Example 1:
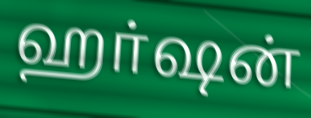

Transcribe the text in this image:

ஹர்ஷன்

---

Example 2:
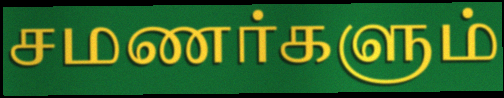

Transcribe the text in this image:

சமணர்களும்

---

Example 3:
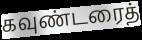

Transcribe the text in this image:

கவுண்டரைத்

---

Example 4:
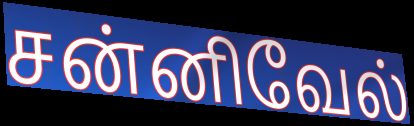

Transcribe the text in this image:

சன்னிவேல்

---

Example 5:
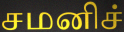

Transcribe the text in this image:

சமனிச்